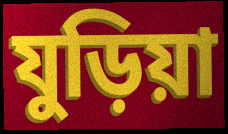
যুড়িয়া